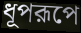
ধূপরূপে